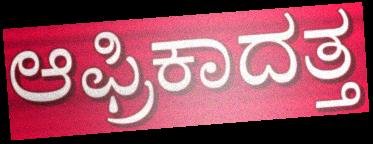
ಆಫ್ರಿಕಾದತ್ತ